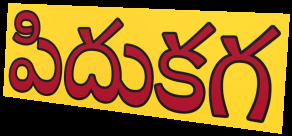
పిదుకగ